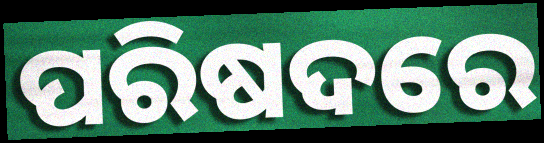
ପରିଷଦରେ